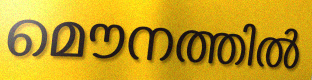
മൌനത്തിൽ